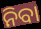
ନିବା